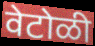
वेटोळी